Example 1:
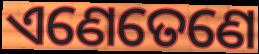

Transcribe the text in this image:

ଏଣେତେଣେ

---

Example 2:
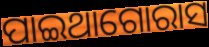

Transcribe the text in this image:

ପାଇଥାଗୋରାସ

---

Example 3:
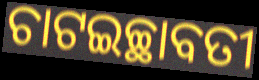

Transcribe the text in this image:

ଚାଟଇଚ୍ଛାବତୀ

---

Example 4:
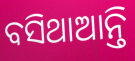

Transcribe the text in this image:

ବସିଥାଆନ୍ତି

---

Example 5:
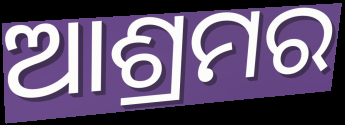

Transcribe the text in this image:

ଆଶ୍ରମର